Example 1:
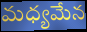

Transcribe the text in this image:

మధ్యమేన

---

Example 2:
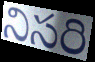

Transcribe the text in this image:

నిసరి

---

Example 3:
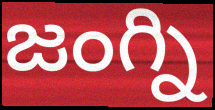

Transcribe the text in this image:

జంగ్ని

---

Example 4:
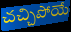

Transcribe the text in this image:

చచ్చిపోయే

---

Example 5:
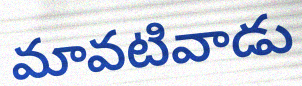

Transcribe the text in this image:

మావటివాడు